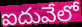
ఐదువేలో